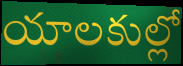
యాలకుల్లో